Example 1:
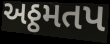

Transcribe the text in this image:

અઠ્ઠમતપ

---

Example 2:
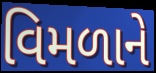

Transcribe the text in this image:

વિમળાને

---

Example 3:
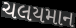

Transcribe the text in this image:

ચલયમાન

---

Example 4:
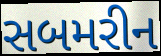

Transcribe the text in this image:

સબમરીન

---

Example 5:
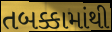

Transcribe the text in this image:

તબક્કામાંથી